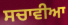
ਸਚਾਵੀਆ